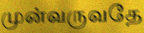
முன்வருவதே